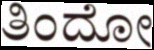
ತಿಂದೋ